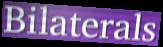
Bilaterals